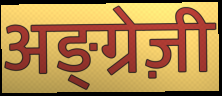
अङ्ग्रेज़ी